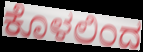
ಕೊಳಲಿಂದ